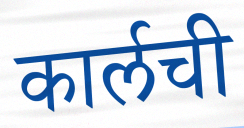
कार्लची